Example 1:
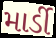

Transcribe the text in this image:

માર્ડી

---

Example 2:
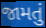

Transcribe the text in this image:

જામતું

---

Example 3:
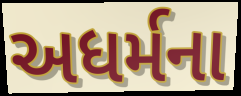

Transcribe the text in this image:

અધર્મના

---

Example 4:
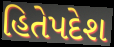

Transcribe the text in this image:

હિતેપદેશ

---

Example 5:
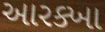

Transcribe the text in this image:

આરક્ખા